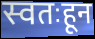
स्वतःहून